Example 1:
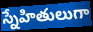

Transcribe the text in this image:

స్నేహితులుగా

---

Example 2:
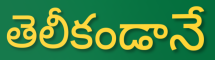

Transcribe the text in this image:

తెలీకండానే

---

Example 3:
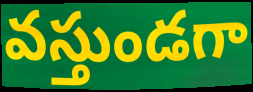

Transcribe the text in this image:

వస్తుండగా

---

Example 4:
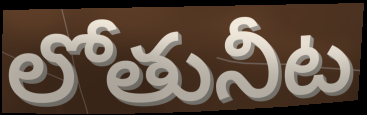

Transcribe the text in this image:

లోతునీట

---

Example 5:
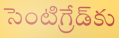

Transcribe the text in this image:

సెంటిగ్రేడ్‌కు